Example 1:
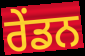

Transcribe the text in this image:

ਰੇਂਡਨ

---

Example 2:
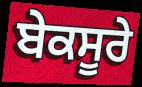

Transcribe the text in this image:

ਬੇਕਸੂਰੇ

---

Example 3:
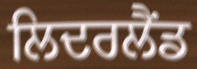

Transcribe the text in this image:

ਲਿਦਰਲੈਂਡ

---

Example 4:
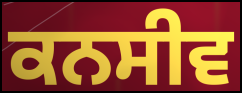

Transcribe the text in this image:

ਕਨਸੀਵ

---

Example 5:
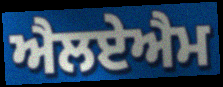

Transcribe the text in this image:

ਐਲਏਐਮ